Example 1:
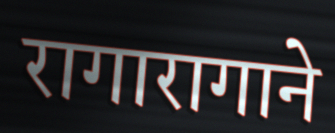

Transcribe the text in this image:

रागारागाने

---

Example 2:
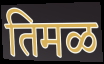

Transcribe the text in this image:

तिमळ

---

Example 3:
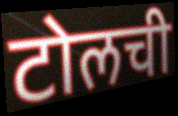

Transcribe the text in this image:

टोलची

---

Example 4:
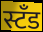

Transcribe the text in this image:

स्टॅंड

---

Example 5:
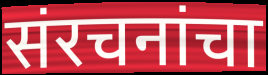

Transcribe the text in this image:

संरचनांचा